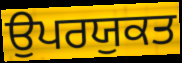
ਉਪਰਯੁਕਤ